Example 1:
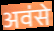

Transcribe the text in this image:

अव॑से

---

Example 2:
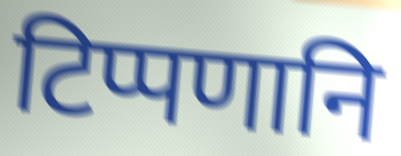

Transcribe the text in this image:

टिप्पणानि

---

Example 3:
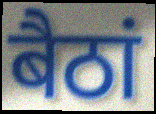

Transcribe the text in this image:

बैठां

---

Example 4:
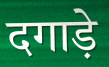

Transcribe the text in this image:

दगाड़े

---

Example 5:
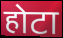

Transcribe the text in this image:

होटा